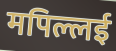
मपिल्लई